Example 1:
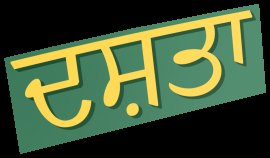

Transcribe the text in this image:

ਦਸ਼ਤਾ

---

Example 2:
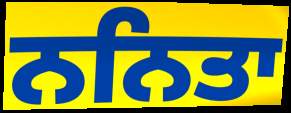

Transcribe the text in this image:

ਨਨਿਤਾ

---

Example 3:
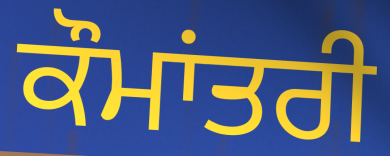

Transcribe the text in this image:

ਕੌਮਾਂਤਰੀ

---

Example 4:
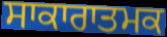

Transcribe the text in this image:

ਸਾਕਾਰਾਤਮਕ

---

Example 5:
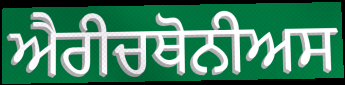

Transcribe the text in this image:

ਐਰੀਚਥੋਨੀਅਸ